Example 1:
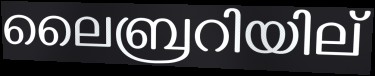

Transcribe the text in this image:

ലൈബ്രറിയില്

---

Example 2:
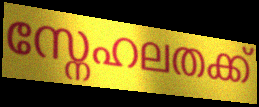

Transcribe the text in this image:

സ്നേഹലതക്ക്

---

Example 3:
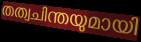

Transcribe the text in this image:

തത്വചിന്തയുമായി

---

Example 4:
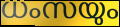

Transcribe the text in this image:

ധംസയും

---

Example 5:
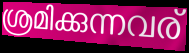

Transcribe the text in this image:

ശ്രമിക്കുന്നവര്